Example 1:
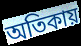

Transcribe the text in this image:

অতিকায়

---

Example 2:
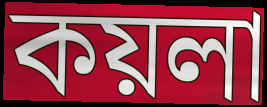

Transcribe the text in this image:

কয়লা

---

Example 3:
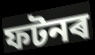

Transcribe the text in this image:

ফটনৰ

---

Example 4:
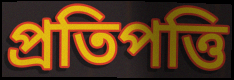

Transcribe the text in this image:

প্ৰতিপত্তি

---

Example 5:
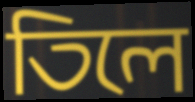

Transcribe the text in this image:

তিলে